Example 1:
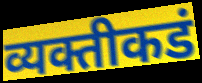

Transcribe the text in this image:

व्यक्तीकडं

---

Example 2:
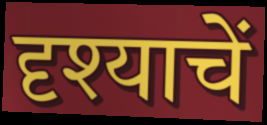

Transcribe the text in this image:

दृश्याचें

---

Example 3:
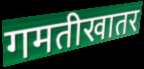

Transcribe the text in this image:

गमतीखातर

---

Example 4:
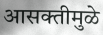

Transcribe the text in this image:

आसक्तीमुळे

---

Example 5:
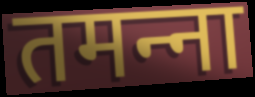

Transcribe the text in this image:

तमन्ना